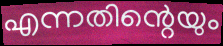
എന്നതിന്റെയും